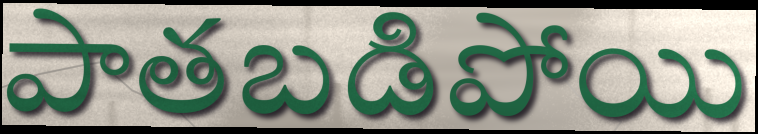
పాతబడిపోయి